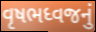
વૃષભધ્વજનું